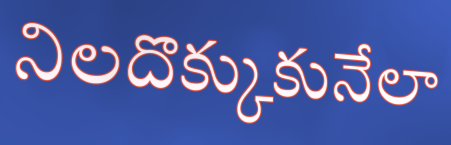
నిలదొక్కుకునేలా